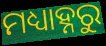
ମଧ୍ୟାହ୍ନରୁ